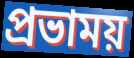
প্রভাময়